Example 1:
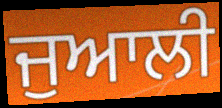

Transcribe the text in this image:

ਜੁਆਲੀ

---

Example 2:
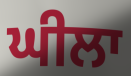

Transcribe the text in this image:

ਘੀਲਾ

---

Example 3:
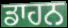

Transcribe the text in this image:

ਡਾਹਨ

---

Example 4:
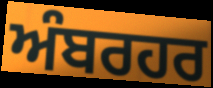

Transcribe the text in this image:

ਅੰਬਰਹਰ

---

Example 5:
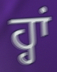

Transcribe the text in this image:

ਹ੍ਹਾਂ